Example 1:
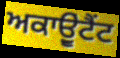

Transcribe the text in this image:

ਅਕਾਉੂਂਟੈਂਟ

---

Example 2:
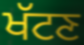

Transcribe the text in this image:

ਖੱਟਣ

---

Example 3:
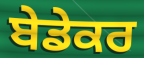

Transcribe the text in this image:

ਬੇਡੇਕਰ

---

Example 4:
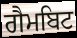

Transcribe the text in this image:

ਗੈਮਬਿਟ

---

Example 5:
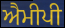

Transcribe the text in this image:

ਐਮੀਪੀ